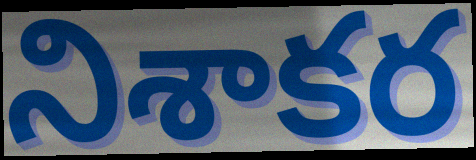
నిశాకర